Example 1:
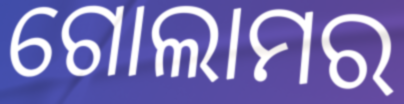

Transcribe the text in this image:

ଗୋଲାମର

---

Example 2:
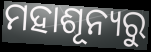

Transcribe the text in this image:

ମହାଶୂନ୍ୟରୁ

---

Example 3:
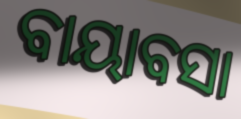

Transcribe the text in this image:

ବାୟାବସା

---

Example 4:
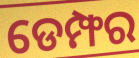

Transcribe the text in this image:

ଡେମ୍ଫର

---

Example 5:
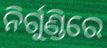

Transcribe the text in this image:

ନିର୍ଗୁଣ୍ଡିରେ